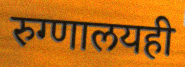
रुग्णालयही